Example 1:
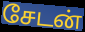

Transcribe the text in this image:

சேடன்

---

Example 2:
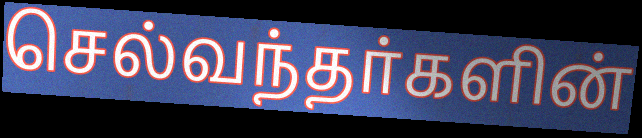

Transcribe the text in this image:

செல்வந்தர்களின்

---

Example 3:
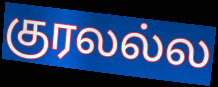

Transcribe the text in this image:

குரலல்ல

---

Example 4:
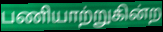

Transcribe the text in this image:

பணியாற்றுகின்ற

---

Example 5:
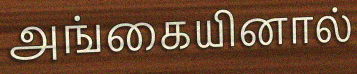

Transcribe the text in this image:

அங்கையினால்